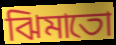
ঝিমাতো